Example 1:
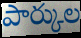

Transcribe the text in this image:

పార్కుల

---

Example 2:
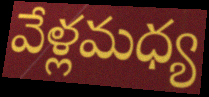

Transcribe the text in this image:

వేళ్లమధ్య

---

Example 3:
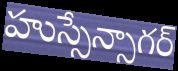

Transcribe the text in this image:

హుస్సేన్సాగర్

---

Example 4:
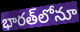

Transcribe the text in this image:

భారత్‌లోనూ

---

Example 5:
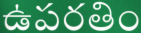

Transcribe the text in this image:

ఉపరతిం